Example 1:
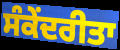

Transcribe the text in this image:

ਸੰਕੇਂਦਰੀਤਾ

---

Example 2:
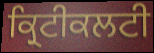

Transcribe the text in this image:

ਕ੍ਰਿਟੀਕਲਟੀ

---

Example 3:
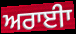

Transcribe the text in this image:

ਅਰਾਈਾ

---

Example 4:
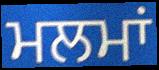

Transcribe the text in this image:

ਮਲਮਾਂ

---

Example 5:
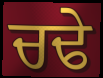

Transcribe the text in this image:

ਚਢੇ